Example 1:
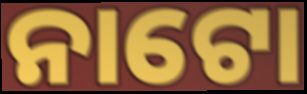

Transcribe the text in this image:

ନାଟୋ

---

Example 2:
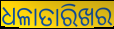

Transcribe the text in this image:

ଧଳାତାରିଖର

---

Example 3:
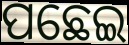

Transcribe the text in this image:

ପଛେଇ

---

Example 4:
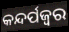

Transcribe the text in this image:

କନ୍ଦର୍ପଜ୍ବର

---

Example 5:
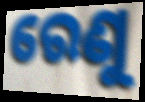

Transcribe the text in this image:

ରେଣୁ